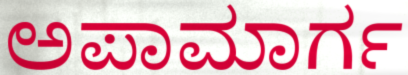
ಅಪಾಮಾರ್ಗ